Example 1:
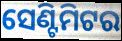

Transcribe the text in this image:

ସେଣ୍ଟିମିଟର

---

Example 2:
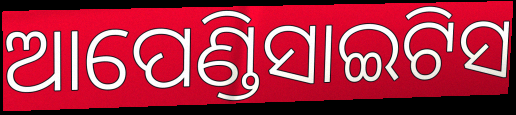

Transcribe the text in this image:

ଆପେଣ୍ଡିସାଇଟିସ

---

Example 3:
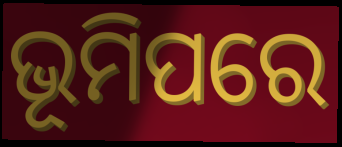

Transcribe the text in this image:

ଭୂମିପରେ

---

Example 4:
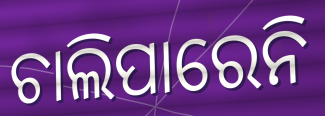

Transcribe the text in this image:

ଚାଲିପାରେନି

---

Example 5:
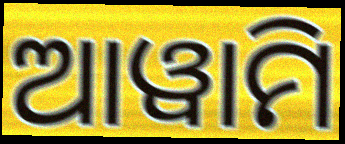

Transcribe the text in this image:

ଆୱାମି